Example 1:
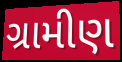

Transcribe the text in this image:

ગ્રામીણ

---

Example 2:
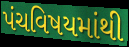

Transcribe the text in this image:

પંચવિષયમાંથી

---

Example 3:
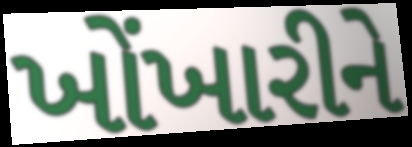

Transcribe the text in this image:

ખોંખારીને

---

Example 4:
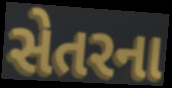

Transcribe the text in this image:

સેતરના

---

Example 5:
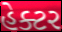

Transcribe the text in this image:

હેક્ટર